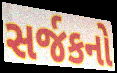
સર્જકનો